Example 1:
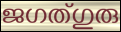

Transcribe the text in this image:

ജഗത്ഗുരു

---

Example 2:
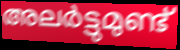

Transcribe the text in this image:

അലർട്ടുമുണ്ട്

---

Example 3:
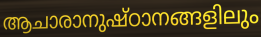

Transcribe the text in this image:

ആചാരാനുഷ്ഠാനങ്ങളിലും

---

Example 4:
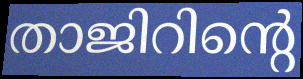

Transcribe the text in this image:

താജിറിന്റെ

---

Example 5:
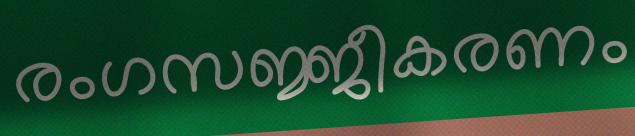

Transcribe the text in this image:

രംഗസജ്ജീകരണം